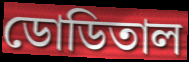
ডোডিতাল